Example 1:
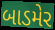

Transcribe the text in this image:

બાડમેર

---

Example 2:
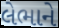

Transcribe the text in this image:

લેભાને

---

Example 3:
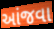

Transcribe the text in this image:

આંજવા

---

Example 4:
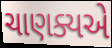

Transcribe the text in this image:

ચાણક્યએ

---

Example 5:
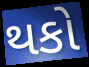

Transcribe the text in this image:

થકો